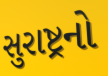
સુરાષ્ટ્રનો